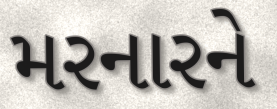
મરનારને